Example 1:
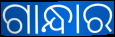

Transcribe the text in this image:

ଗାନ୍ଧାର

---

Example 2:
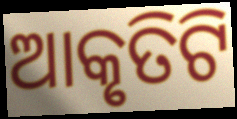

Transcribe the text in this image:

ଆକୃତିଟି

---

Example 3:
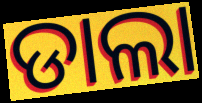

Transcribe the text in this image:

ଡାଲା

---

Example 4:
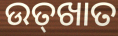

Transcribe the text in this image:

ଉତ୍‌ଖାତ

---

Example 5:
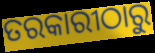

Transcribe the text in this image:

ତରକାରୀଠାରୁ